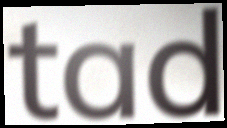
tad